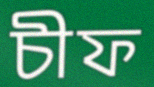
চীফ